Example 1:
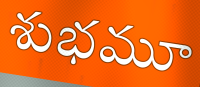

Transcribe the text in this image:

శుభమూ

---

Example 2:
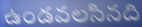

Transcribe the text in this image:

ఉండవలసినది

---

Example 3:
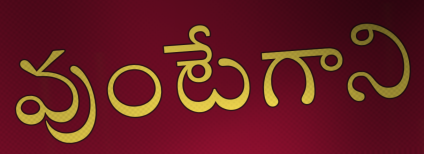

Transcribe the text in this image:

వుంటేగాని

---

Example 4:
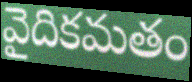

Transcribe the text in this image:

వైదికమతం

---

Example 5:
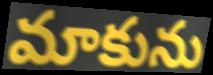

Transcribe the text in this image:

మాకును